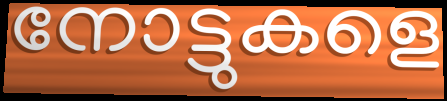
നോട്ടുകളെ